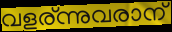
വളര്ന്നുവരാന്